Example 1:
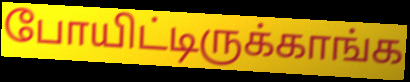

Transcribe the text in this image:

போயிட்டிருக்காங்க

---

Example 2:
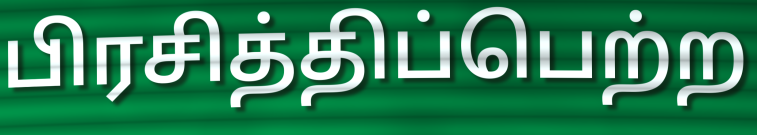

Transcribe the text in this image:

பிரசித்திப்பெற்ற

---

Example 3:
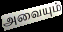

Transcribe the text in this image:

அவையும்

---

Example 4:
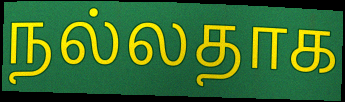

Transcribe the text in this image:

நல்லதாக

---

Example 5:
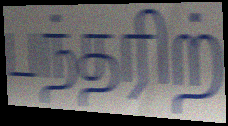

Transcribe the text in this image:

பந்தரிற்